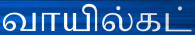
வாயில்கட்